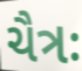
ચૈત્રઃ